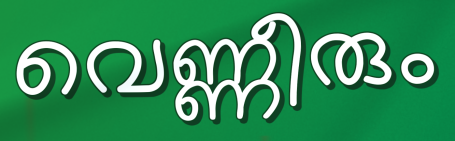
വെണ്ണീരും